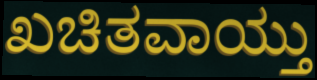
ಖಚಿತವಾಯ್ತು